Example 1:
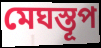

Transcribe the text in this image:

মেঘস্তূপ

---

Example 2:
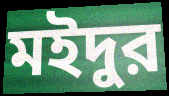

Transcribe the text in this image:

মইদুর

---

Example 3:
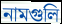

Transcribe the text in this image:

নামগুলি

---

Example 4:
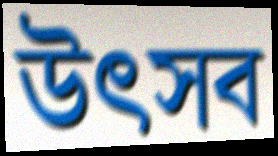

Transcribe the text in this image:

উত্‍সব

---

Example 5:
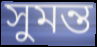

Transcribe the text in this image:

সুমন্ত